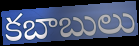
కబాబులు